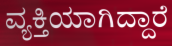
ವ್ಯಕ್ತಿಯಾಗಿದ್ದಾರೆ